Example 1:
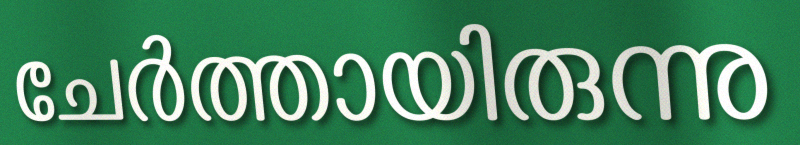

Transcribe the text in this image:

ചേർത്തായിരുന്നു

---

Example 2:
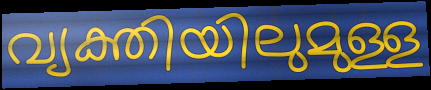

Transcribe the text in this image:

വ്യക്തിയിലുമുള്ള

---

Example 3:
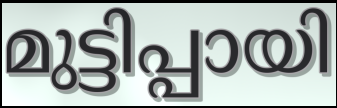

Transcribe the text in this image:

മുട്ടിപ്പായി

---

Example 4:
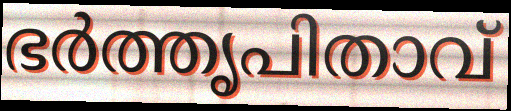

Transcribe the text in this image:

ഭർത്തൃപിതാവ്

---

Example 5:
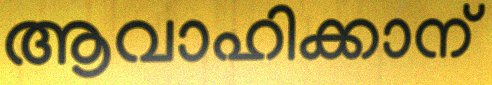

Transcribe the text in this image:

ആവാഹിക്കാന്